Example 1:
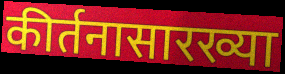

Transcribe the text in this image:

कीर्तनासारख्या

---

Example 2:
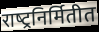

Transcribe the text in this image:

राष्ट्रनिर्मितीत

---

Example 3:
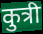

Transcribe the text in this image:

कुत्री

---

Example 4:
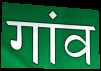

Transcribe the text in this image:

गांव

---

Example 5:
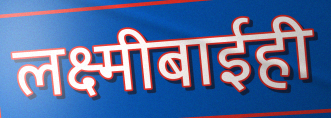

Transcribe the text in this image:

लक्ष्मीबाईही